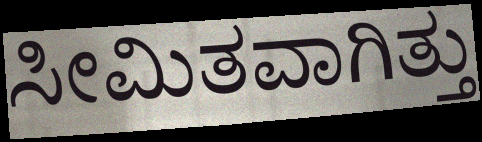
ಸೀಮಿತವಾಗಿತ್ತು